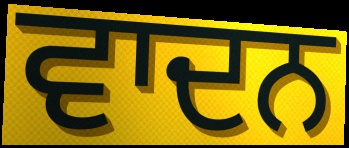
ਵਾਦਨ